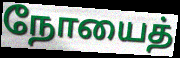
நோயைத்